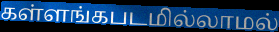
கள்ளங்கபடமில்லாமல்